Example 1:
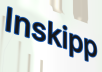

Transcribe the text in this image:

Inskipp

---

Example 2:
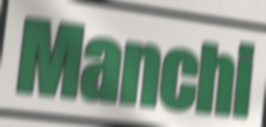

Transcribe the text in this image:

Manchi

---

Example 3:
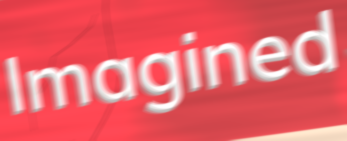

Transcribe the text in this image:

Imagined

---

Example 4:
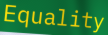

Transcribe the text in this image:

Equality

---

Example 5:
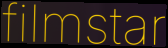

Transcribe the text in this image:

filmstar